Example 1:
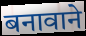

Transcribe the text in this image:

बनावाने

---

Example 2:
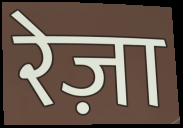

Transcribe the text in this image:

रेज़ा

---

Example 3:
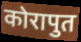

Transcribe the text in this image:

कोरापुत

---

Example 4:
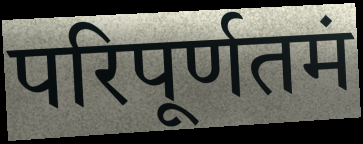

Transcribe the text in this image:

परिपूर्णतमं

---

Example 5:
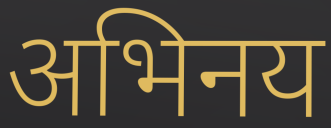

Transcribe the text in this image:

अभिनय